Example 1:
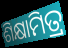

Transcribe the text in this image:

ଶିକ୍ଷାମିତ୍ର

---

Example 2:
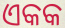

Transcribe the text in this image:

ଏକକ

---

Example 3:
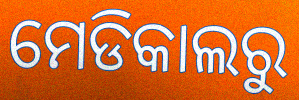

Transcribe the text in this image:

ମେଡିକାଲରୁ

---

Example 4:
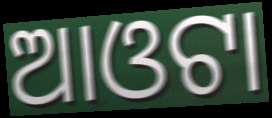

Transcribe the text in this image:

ଆଓଟା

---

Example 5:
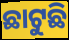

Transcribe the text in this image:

ଛାଟୁଛି